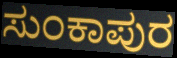
ಸುಂಕಾಪುರ